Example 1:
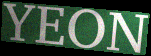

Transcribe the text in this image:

YEON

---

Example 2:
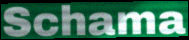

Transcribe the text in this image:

Schama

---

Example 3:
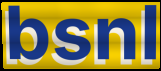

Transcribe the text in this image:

bsnl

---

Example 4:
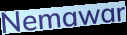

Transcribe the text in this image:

Nemawar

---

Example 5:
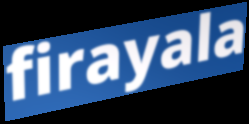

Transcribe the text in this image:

firayala